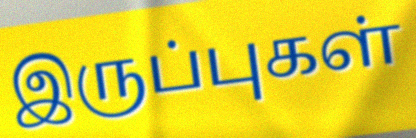
இருப்புகள்